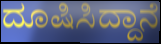
ದೂಷಿಸಿದ್ದಾನೆ